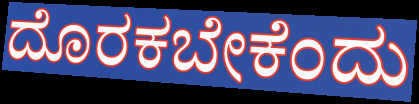
ದೊರಕಬೇಕೆಂದು